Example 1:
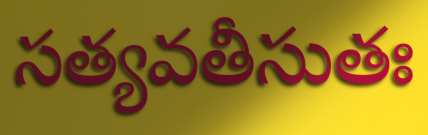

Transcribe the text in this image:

సత్యవతీసుతః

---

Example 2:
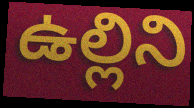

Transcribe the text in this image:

ఉల్లిని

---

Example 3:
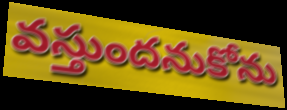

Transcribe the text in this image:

వస్తుందనుకోను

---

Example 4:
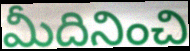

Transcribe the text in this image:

మీదినించి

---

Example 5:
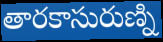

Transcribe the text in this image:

తారకాసురుణ్ని